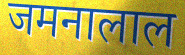
जमनालाल